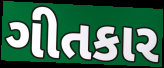
ગીતકાર